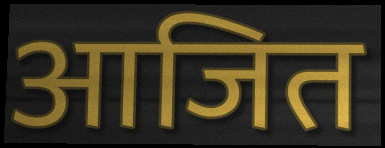
आजित